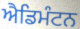
ਐਡਿਮੰਟਨ